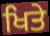
ਖਿਤੇ